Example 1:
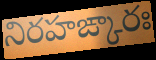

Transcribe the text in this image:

నిరహఙ్కారః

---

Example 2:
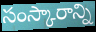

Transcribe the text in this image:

సంస్కారాన్ని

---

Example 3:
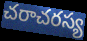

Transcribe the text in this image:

చరాచరస్య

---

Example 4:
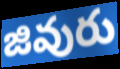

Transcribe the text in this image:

జివురు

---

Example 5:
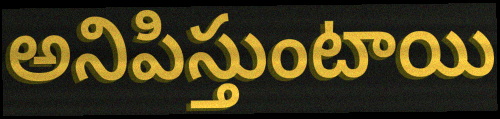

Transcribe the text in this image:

అనిపిస్తుంటాయి